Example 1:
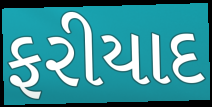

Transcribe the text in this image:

ફરીયાદ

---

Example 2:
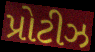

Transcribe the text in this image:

પ્રોટીઝ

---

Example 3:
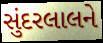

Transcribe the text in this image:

સુંદરલાલને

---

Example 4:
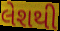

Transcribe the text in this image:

લેશથી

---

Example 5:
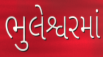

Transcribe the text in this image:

ભુલેશ્વરમાં